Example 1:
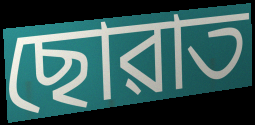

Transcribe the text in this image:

ছোৱাত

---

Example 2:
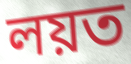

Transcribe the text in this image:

লয়ত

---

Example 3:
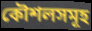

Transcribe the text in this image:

কৌশলসমূহ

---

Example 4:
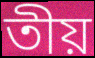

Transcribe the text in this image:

তীয়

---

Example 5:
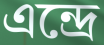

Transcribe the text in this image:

এন্দ্ৰে